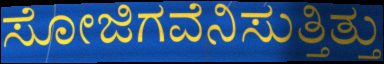
ಸೋಜಿಗವೆನಿಸುತ್ತಿತ್ತು